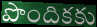
పొందికకు